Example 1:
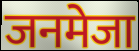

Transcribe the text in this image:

जनमेजा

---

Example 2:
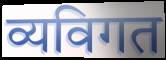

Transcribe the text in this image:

व्यविगत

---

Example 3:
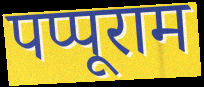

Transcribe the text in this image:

पप्पूराम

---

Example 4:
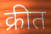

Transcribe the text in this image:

क्रीत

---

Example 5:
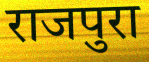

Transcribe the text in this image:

राजपुरा